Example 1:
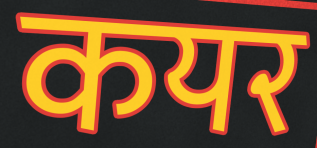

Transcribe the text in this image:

कयर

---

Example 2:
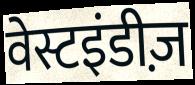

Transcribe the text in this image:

वेस्टइंडीज़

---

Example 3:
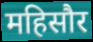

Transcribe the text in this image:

महिसौर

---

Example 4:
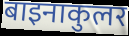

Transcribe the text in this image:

बाइनाकुलर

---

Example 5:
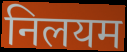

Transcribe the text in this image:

निलयम